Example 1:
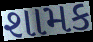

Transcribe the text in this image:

શામક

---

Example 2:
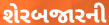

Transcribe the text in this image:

શેરબજારની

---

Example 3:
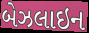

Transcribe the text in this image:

બેઝલાઇન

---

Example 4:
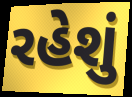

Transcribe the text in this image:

રહેશું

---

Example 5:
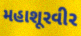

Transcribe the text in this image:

મહાશૂરવીર